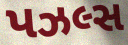
પઝલ્સ